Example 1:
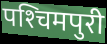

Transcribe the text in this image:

पश्चिमपुरी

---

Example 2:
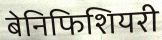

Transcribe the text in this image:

बेनिफिशियरी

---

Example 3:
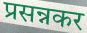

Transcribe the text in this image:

प्रसन्नकर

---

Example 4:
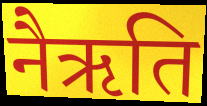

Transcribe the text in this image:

नैऋति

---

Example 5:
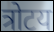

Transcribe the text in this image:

त्रोटय